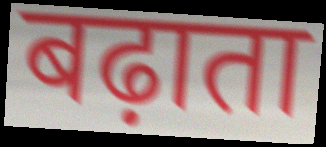
बढ़ाता